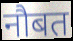
नौबत